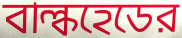
বাল্কহেডের